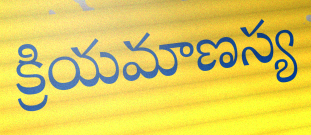
క్రియమాణస్య